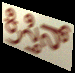
ಕ್ರಿಸ್ತಿನ್